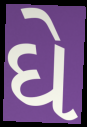
ઘે